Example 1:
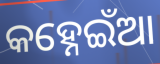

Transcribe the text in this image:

କହ୍ନେଇଁଆ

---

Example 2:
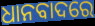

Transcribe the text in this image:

ଧାନବାଦରେ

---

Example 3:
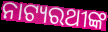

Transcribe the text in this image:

ନାଟ୍ୟରଥୀଙ୍କ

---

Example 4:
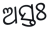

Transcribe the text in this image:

ଅସ୍ତଃ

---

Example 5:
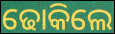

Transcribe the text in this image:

ଢୋକିଲେ